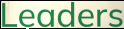
Leaders